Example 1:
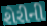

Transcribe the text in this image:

શેરીની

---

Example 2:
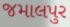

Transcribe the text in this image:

જમાલપુર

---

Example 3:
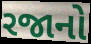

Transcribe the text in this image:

રજાનો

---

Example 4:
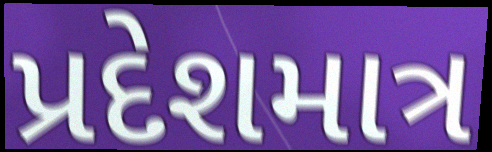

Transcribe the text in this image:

પ્રદેશમાત્ર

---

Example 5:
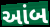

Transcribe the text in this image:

આંબ